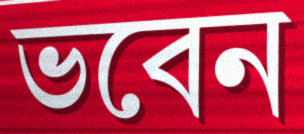
ভবেন